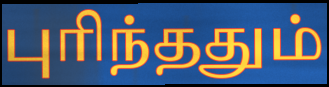
புரிந்ததும்